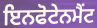
ਇਨਫੋਟੇਨਮੈਂਟ